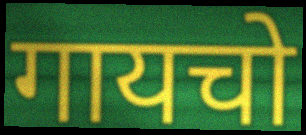
गायचो